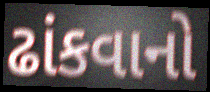
ઢાંકવાનો